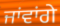
ਜਾਂਵਾਂਗੇ